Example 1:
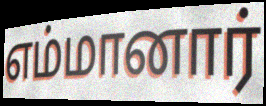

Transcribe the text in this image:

எம்மானார்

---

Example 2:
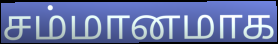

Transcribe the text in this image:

சம்மானமாக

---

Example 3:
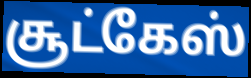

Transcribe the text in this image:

சூட்கேஸ்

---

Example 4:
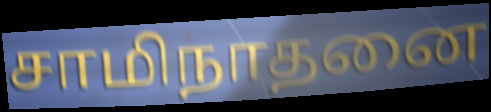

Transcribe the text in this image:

சாமிநாதனை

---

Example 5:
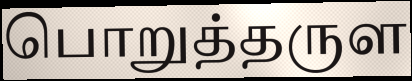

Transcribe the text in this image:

பொறுத்தருள